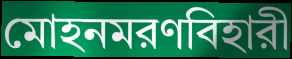
মোহনমরণবিহারী